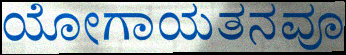
ಯೋಗಾಯತನವೂ